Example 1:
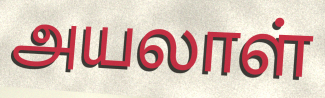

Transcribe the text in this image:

அயலாள்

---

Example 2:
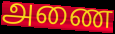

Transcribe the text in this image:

அணை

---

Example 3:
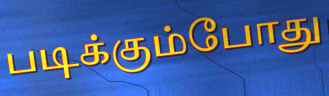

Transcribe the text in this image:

படிக்கும்போது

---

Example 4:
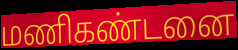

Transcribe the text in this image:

மணிகண்டனை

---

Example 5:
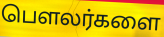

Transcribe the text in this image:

பௌலர்களை